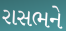
રાસભને